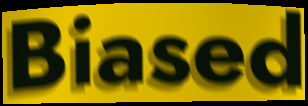
Biased